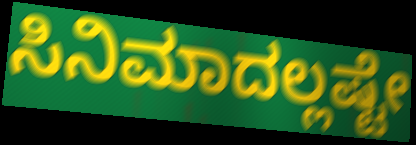
ಸಿನಿಮಾದಲ್ಲಷ್ಟೇ